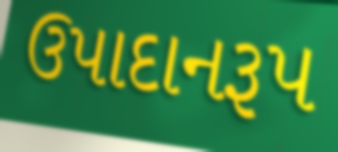
ઉપાદાનરૂપ